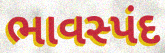
ભાવસ્પંદ